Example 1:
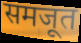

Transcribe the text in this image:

समजूत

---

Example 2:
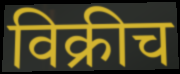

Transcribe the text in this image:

विक्रीच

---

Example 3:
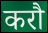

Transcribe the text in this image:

करौ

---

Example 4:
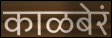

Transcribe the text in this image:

काळबेरं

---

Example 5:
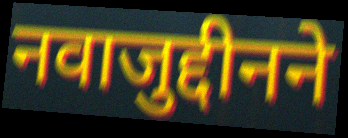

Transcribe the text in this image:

नवाजुद्दीनने